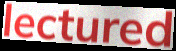
lectured